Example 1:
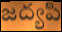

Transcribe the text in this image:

జద్యపి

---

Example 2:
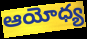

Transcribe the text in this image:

ఆయోధ్య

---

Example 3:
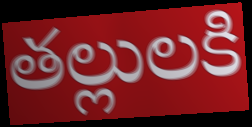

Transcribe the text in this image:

తల్లులకి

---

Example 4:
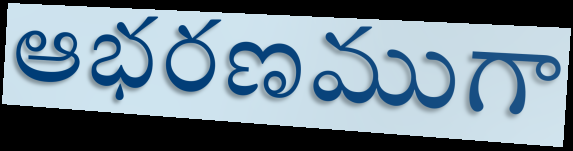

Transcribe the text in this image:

ఆభరణముగా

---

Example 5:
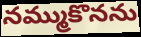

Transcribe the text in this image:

నమ్ముకొనను